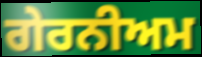
ਗੇਰਨੀਅਮ